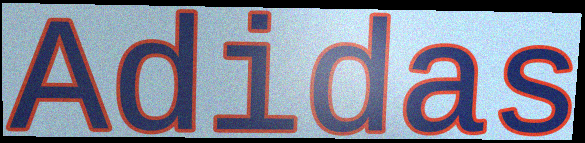
Adidas